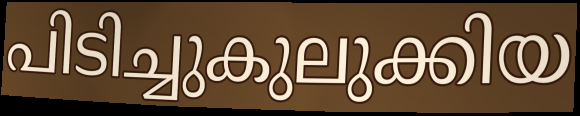
പിടിച്ചുകുലുക്കിയ